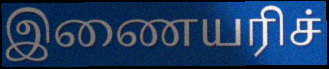
இணையரிச்